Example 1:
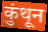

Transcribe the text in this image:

कुंथून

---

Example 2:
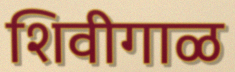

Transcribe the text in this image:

शिवीगाळ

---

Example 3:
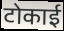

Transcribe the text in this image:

टोकाई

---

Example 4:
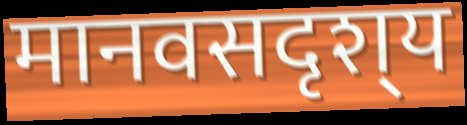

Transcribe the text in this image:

मानवसदृश्य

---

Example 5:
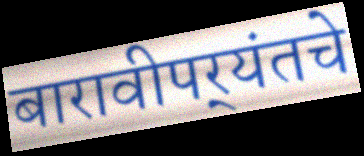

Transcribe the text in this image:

बारावीपर्यंतचे